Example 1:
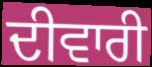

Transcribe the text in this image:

ਦੀਵਾਰੀ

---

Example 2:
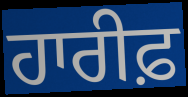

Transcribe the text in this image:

ਹਾਰੀਫ਼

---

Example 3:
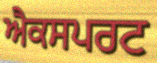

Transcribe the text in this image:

ਐਕਸਪਰਟ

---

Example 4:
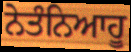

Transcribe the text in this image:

ਨੇਤੰਨਿਆਹੂ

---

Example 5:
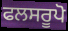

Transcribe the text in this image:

ਫਲਸਰੂਪੋ